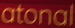
atonal